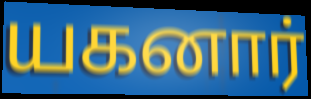
யகனார்